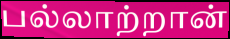
பல்லாற்றான்